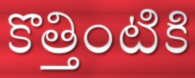
కొత్తింటికి